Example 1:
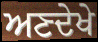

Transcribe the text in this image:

ਅਣਦੇਖੇ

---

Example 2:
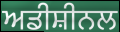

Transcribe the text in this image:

ਅਡੀਸ਼ੀਨਲ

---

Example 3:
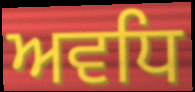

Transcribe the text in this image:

ਅਵਧਿ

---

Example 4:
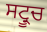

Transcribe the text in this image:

ਸਟ੍ਰੂਚ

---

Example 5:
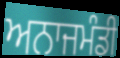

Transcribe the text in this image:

ਅਨਾਜਮੰਡੀ